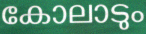
കോലാടും